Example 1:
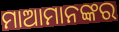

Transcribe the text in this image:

ମାଆମାନଙ୍କର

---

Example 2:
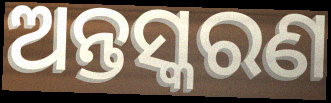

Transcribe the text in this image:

ଅନ୍ତସ୍କରଣ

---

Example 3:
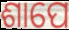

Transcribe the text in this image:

ଶାପେ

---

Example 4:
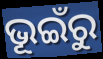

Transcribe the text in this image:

ଭୂଇଁରୁ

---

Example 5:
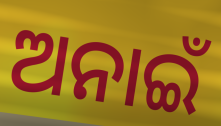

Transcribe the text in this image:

ଅନାଇଁ